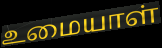
உமையாள்